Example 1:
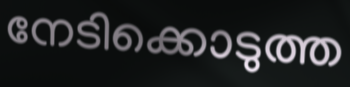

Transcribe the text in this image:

നേടിക്കൊടുത്ത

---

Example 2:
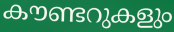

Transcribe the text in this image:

കൗണ്ടറുകളും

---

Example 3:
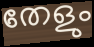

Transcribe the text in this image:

തേളും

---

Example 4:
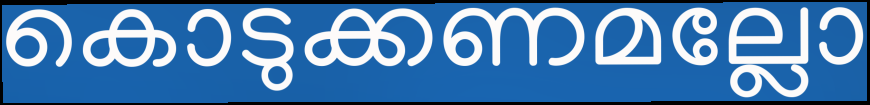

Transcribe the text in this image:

കൊടുക്കണമല്ലോ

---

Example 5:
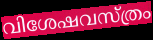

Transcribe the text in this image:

വിശേഷവസ്ത്രം